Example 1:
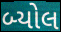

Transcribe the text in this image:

બ્યોલ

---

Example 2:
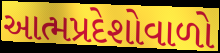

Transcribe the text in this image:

આત્મપ્રદેશોવાળો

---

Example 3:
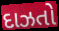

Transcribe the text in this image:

દાઝતો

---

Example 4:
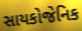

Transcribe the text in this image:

સાયકોજેનિક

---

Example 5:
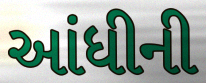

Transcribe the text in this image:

આંધીની